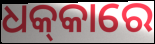
ଧକ୍‍କାରେ